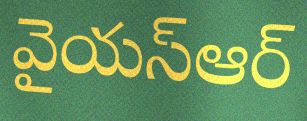
వైయస్ఆర్